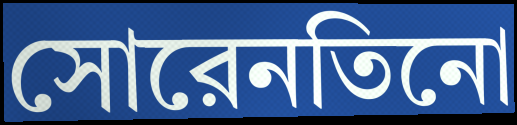
সোরেনতিনো